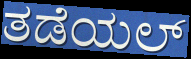
ತಡೆಯಲ್